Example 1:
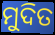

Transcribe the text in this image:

ମୁଦିତ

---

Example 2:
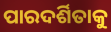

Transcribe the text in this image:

ପାରଦର୍ଶିତାକୁ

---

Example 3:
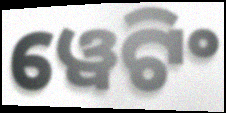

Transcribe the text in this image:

ୱେଟିଂ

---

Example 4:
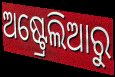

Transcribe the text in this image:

ଅଷ୍ଟ୍ରେଲିଆରୁ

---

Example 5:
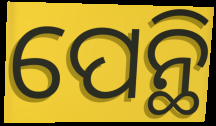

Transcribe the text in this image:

ପେନ୍ଥି